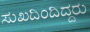
ಸುಖದಿಂದಿದ್ದರು